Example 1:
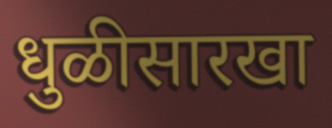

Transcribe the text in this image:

धुळीसारखा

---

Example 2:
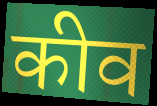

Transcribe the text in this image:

कीव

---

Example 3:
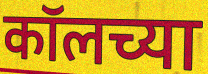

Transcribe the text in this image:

कॉलच्या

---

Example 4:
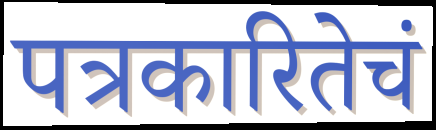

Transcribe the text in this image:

पत्रकारितेचं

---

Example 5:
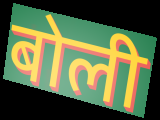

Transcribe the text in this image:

बोली